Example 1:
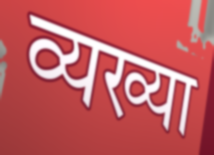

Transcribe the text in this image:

व्यख्या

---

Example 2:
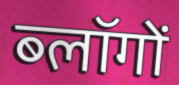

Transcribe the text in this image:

ब्‍लॉगों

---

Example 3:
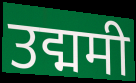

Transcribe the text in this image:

उद्ममी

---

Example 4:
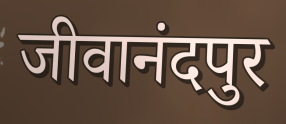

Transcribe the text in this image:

जीवानंदपुर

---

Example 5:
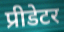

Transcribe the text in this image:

प्रीडेटर